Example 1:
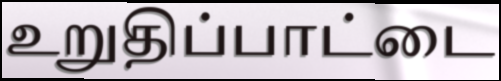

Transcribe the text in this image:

உறுதிப்பாட்டை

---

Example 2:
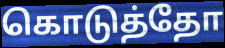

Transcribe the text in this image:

கொடுத்தோ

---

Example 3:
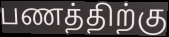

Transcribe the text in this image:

பணத்திற்கு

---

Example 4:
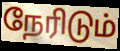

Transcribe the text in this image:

நேரிடும்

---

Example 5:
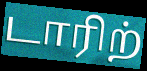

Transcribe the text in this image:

டாரிற்